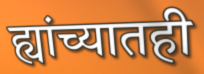
ह्यांच्यातही